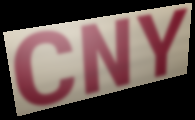
CNY